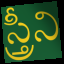
స్త్రీని